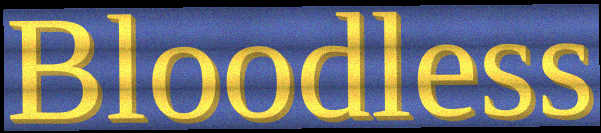
Bloodless